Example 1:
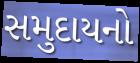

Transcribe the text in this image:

સમુદાયનો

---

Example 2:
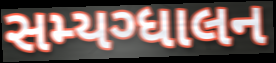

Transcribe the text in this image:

સમ્યગ્ધાલન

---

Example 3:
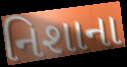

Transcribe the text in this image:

નિશાના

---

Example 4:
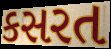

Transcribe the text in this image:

કસરત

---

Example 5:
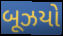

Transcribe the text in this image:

બૂઝયો